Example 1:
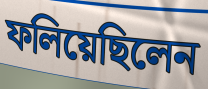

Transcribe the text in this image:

ফলিয়েছিলেন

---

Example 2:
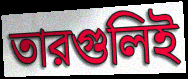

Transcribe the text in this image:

তারগুলিই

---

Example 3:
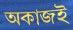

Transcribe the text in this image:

অকাজই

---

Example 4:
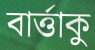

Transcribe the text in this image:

বার্ত্তাকু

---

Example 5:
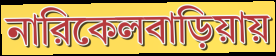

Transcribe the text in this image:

নারিকেলবাড়িয়ায়